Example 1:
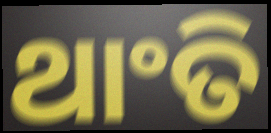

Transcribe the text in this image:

ଥାଂତି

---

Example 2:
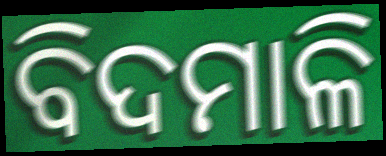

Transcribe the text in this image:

ବିଦମାଳି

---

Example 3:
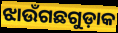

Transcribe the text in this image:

ଝାଉଁଗଛଗୁଡ଼ାକ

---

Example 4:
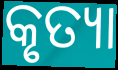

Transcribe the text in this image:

କୃତ୍ୟା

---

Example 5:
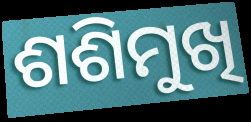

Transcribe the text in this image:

ଶଶିମୁଖି